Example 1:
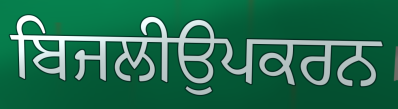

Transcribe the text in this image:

ਬਿਜਲੀਉਪਕਰਨ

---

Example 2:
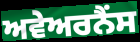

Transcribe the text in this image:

ਅਵੇਅਰਨੈਂਸ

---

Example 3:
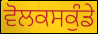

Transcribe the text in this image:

ਵੋਲਕਸਕੁੰਡੇ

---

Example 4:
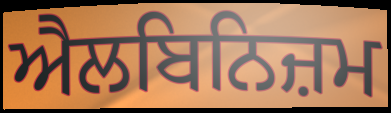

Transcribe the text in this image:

ਐਲਬਿਨਿਜ਼ਮ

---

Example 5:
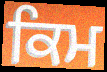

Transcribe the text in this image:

ਕਿਮ